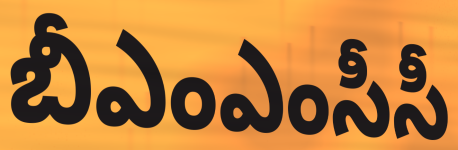
బీఎంఎంసీసీ